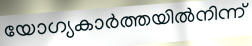
യോഗ്യകാർത്തയിൽനിന്ന്